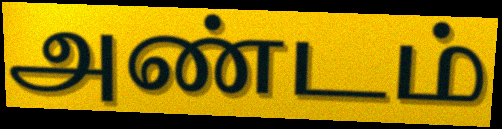
அண்டம்